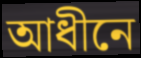
আধীনে